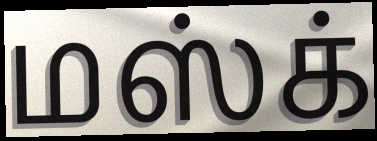
மஸ்க்